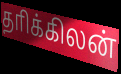
தரிக்கிலன்